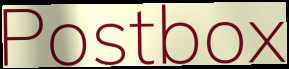
Postbox